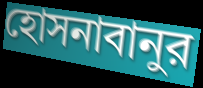
হোসনাবানুর